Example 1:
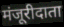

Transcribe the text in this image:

मंजूरीदाता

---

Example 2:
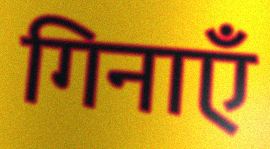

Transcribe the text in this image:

गिनाएँ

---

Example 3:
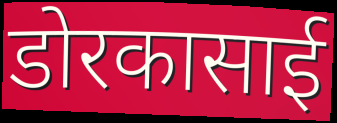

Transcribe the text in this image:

डोरकासाई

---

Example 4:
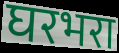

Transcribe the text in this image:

घरभरा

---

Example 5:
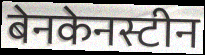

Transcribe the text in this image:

बेनकेनस्टीन